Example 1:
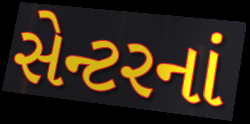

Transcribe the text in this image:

સેન્ટરનાં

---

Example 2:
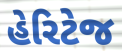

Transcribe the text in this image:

હેરિટેજ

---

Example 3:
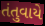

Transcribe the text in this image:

તંતુવાયે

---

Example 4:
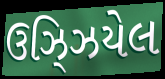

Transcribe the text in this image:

ઉઝ્ઝિયેલ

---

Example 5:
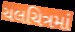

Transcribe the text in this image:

ચલચિત્રમાં